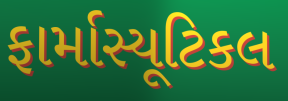
ફાર્માસ્યૂટિકલ